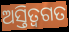
ଅସ୍ତିତ୍ବଗତ